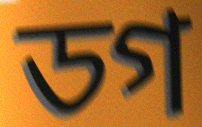
ডগ